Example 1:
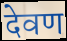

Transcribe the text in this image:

देवण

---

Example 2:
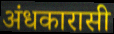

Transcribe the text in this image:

अंधकारासी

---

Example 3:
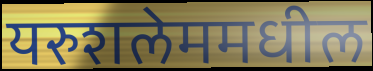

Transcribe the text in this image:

यरुशलेममधील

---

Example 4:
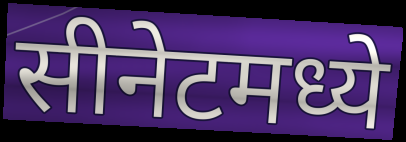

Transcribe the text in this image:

सीनेटमध्ये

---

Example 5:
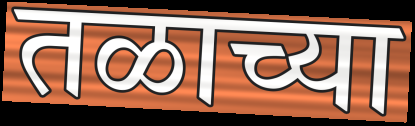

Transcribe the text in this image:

तळाच्या